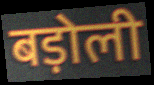
बड़ोली